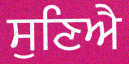
ਸੁਣਿਐ